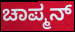
ಚಾಪ್ಮನ್